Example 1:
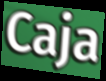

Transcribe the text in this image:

Caja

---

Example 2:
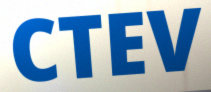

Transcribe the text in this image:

CTEV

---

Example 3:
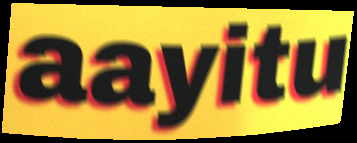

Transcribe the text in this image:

aayitu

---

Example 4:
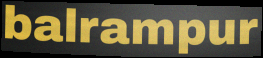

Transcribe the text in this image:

balrampur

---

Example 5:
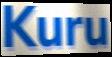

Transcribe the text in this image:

Kuru